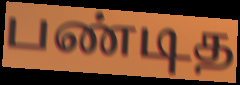
பண்டித